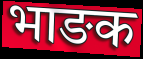
भाङक